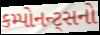
કમ્પોનન્ટ્સનો